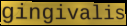
gingivalis